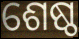
ଶେଷ୍ଠ